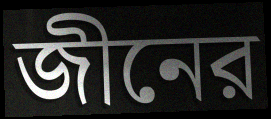
জীনের